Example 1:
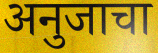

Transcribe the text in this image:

अनुजाचा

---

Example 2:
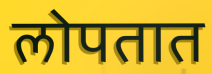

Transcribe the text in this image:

लोपतात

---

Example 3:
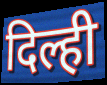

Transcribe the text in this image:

दिल्ही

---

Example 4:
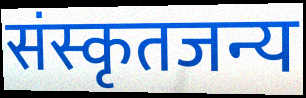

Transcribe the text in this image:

संस्कृतजन्य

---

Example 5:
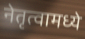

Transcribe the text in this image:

नेतृत्वामध्ये